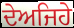
ਦੇਅਜਿਹੇ